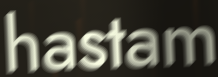
hastam